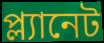
প্ল্যানেট